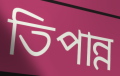
তিপান্ন